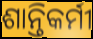
ଶାନ୍ତିକର୍ମୀ